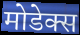
मोडेक्स